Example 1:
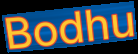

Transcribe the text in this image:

Bodhu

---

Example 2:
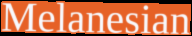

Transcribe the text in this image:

Melanesian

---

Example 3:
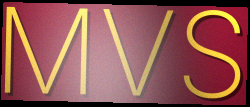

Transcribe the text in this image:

MVS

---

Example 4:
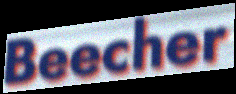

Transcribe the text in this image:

Beecher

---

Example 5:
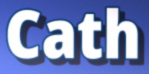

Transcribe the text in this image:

Cath